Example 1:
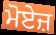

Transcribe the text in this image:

ਮੋਏਜ਼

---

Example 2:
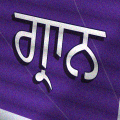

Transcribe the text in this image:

ਗ੍ਰਾਨ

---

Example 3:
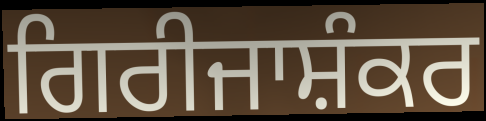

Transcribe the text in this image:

ਗਿਰੀਜਾਸ਼ੰਕਰ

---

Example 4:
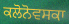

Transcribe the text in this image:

ਕਲੋਨੋਵਸਕਾ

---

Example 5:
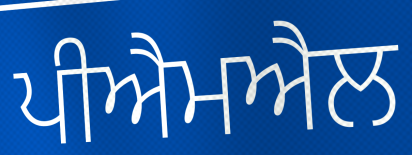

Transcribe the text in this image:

ਪੀਐਮਐਲ